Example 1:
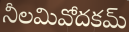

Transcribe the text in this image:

నీలమివోదకమ్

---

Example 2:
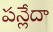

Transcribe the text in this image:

పన్లేదా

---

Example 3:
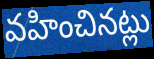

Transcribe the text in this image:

వహించినట్లు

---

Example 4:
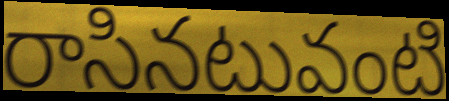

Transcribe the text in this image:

రాసినటువంటి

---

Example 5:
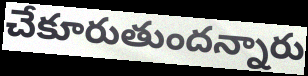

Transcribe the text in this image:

చేకూరుతుందన్నారు